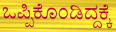
ಒಪ್ಪಿಕೊಂಡಿದ್ದಕ್ಕೆ